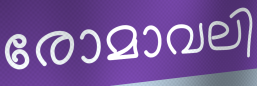
രോമാവലി